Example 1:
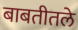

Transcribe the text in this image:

बाबतीतले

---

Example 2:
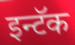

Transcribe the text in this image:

इन्टॅक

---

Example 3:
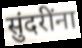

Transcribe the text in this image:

सुंदरींना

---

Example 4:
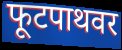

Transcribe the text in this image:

फूटपाथवर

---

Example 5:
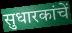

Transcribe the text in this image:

सुधारकांचें